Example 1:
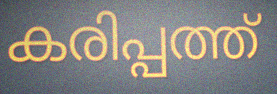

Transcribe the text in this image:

കരിപ്പത്ത്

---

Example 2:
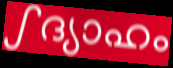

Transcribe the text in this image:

ഽദ്യാഹം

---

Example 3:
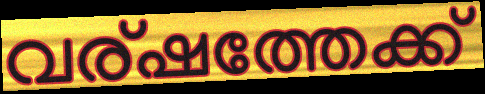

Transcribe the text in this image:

വര്ഷത്തേക്ക്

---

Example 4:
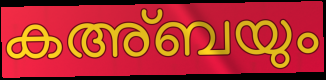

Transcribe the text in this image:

കഅ്ബയും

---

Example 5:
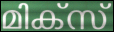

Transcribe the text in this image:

മിക്‌സ്